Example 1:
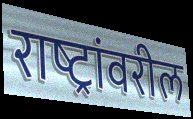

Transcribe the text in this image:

राष्ट्रांवरील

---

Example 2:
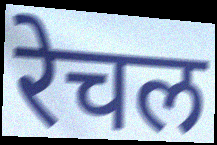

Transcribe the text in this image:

रेचल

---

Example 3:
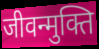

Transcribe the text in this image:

जीवन्मुक्ति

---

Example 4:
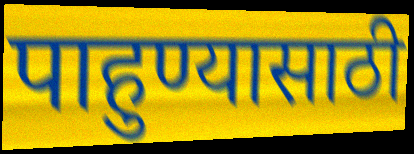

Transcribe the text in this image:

पाहुण्यासाठी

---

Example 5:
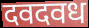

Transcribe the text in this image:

दवदवध